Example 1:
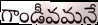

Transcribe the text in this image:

గాండీవమనే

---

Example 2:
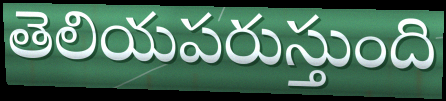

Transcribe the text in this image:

తెలియపరుస్తుంది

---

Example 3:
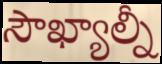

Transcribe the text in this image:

సౌఖ్యాల్నీ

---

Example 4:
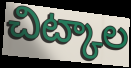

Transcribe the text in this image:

చిట్కాల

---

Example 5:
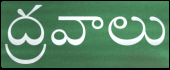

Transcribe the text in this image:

ద్రవాలు